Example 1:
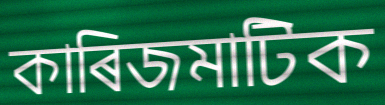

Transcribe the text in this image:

কাৰিজমাটিক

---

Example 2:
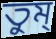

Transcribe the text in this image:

তুম্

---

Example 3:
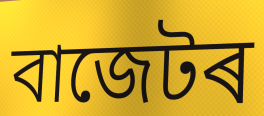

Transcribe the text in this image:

বাজেটৰ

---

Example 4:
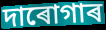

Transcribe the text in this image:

দাৰোগাৰ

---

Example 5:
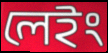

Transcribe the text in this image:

লেইং